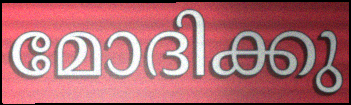
മോദിക്കു